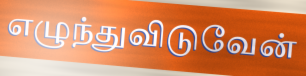
எழுந்துவிடுவேன்